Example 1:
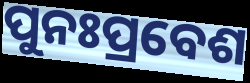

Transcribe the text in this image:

ପୁନଃପ୍ରବେଶ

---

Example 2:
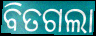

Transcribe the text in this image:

ବିତଗଲା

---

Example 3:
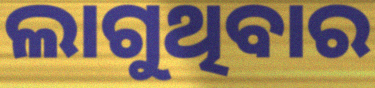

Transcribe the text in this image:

ଲାଗୁଥିବାର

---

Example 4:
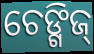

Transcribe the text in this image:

ଚେଙ୍ଗିଜ୍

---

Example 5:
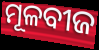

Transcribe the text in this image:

ମୂଳବୀଜ